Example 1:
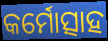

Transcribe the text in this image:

କର୍ମୋତ୍ସାହ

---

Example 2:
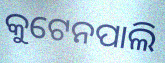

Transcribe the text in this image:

କୁଟେନପାଲି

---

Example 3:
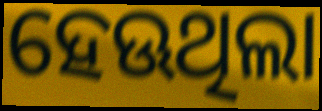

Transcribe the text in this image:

ହେଊଥିଲା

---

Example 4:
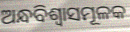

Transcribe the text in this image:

ଅନ୍ଧବିଶ୍ୱାସମୂଳକ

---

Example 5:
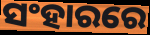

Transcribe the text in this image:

ସଂହାରରେ